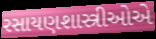
રસાયણશાસ્ત્રીઓએ